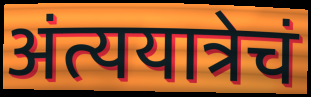
अंत्ययात्रेचं